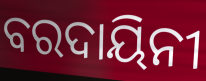
ବରଦାୟିନୀ